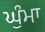
ਘੁੰਮਾ